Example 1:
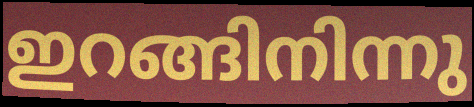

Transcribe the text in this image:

ഇറങ്ങിനിന്നു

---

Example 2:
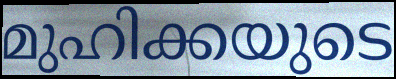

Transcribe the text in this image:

മുഹിക്കയുടെ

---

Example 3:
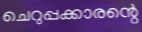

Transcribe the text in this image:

ചെറുപ്പക്കാരന്റെ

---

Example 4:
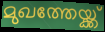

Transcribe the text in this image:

മുഖത്തേയ്ക്ക്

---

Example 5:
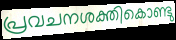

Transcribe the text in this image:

പ്രവചനശക്തികൊണ്ടു